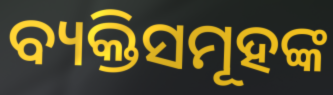
ବ୍ୟକ୍ତିସମୂହଙ୍କ